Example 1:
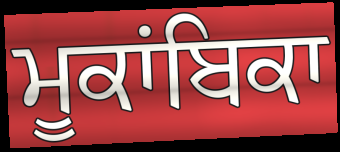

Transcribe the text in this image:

ਮੂਕਾਂਬਿਕਾ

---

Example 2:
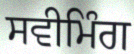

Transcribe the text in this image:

ਸਵੀਮਿੰਗ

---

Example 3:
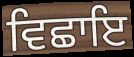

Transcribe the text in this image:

ਵਿਛਾਇ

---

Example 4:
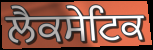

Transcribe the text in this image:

ਲੈਕਸੇਟਿਕ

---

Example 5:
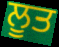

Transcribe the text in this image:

ਲੂਤ